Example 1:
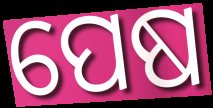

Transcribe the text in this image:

ପେଷ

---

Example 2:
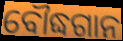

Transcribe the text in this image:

ବୌଦ୍ଧଗାନ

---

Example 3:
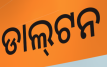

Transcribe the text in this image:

ଡାଲ୍‌ଟନ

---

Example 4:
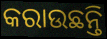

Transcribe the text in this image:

କରାଉଛନ୍ତି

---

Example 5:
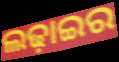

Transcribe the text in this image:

ଲଢ଼ାଇର